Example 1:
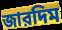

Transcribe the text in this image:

জারদিম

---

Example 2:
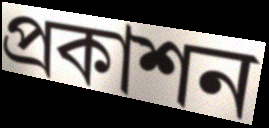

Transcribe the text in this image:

প্রকাশন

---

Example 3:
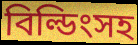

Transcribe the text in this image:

বিল্ডিংসহ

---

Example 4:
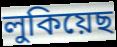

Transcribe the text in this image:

লুকিয়েছ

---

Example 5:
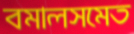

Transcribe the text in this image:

বমালসমেত